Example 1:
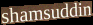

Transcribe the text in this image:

shamsuddin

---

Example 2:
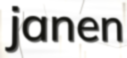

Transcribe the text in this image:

janen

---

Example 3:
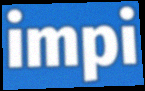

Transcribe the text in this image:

impi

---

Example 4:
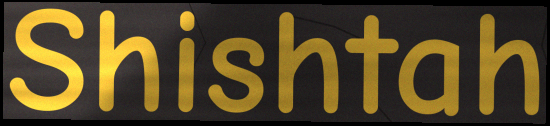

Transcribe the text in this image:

Shishtah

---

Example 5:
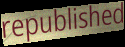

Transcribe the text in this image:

republished